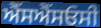
ਐੱਸਐੱਸਓਸੀ